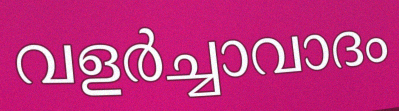
വളർച്ചാവാദം